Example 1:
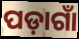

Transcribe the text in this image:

ପଡ଼ାଗାଁ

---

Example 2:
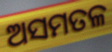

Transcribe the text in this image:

ଅସମତଳ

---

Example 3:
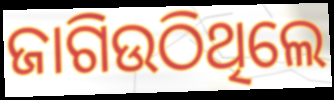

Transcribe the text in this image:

ଜାଗିଉଠିଥିଲେ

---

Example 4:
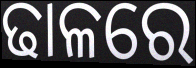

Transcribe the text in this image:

ଢାଳରେ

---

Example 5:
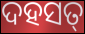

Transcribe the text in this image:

ଦହସତ୍